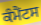
ਕੰਮੈਂਟਸ